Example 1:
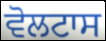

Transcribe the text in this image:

ਵੋਲਟਾਸ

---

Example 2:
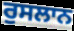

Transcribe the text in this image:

ਰੁਸਲਾਨ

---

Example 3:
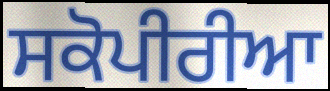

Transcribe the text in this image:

ਸਕੋਪੀਰੀਆ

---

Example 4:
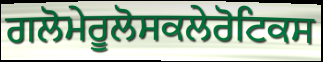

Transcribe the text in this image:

ਗਲੋਮੇਰੂਲੋਸਕਲੇਰੋਟਿਕਸ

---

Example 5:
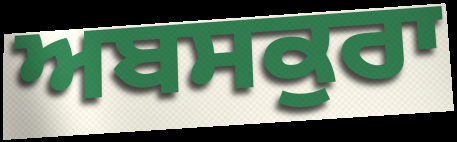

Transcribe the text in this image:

ਅਬਸਕੁਰਾ